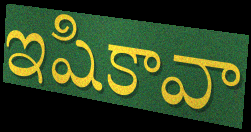
ఇషికావా